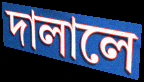
দালালে